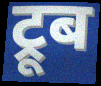
ट्रूब